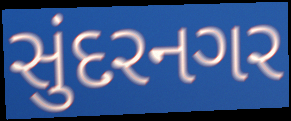
સુંદરનગર